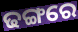
ଢଙ୍ଗରେ